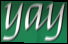
yay